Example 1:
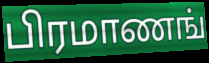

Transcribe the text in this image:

பிரமாணங்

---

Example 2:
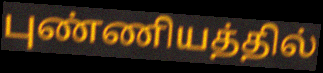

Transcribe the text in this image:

புண்ணியத்தில்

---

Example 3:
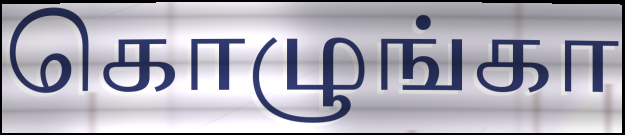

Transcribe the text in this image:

கொழுங்கா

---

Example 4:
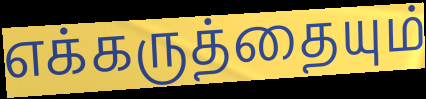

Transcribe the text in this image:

எக்கருத்தையும்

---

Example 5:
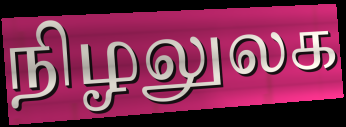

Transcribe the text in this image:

நிழலுலக